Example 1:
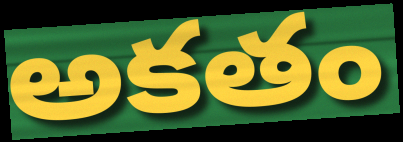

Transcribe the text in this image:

అకతం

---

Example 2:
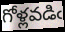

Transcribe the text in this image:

గోళ్లవడిఁ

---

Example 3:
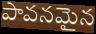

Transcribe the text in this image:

పావనమైన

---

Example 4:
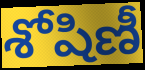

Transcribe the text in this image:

శోషిణీ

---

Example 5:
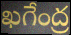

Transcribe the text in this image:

ఖగేంద్ర